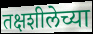
तक्षशीलेच्या